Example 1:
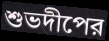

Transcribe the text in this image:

শুভদীপের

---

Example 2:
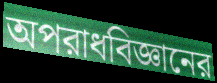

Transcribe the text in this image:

অপরাধবিজ্ঞানের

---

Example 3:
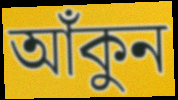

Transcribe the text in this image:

আঁকুন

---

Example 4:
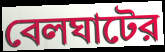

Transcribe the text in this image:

বেলঘাটের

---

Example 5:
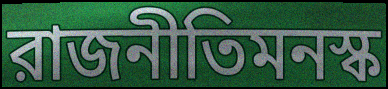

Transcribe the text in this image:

রাজনীতিমনস্ক